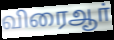
விரைஆர்